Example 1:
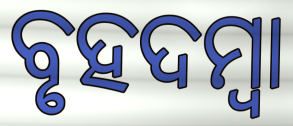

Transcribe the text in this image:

ବୃହଦମ୍ବା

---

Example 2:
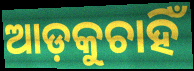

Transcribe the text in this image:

ଆଡ଼କୁଚାହିଁ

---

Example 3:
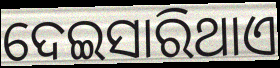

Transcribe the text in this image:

ଦେଇସାରିଥାଏ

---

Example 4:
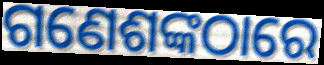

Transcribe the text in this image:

ଗଣେଶଙ୍କଠାରେ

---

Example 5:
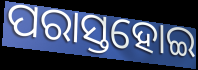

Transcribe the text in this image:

ପରାସ୍ତହୋଇ